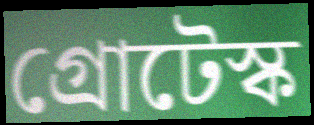
গ্রোটেস্ক